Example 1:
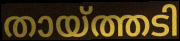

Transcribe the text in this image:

തായ്ത്തടി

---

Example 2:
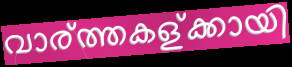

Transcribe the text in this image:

വാര്ത്തകള്ക്കായി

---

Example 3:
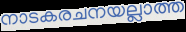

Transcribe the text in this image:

നാടകരചനയല്ലാത്ത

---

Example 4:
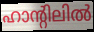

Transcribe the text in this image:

ഹാന്റിലിൽ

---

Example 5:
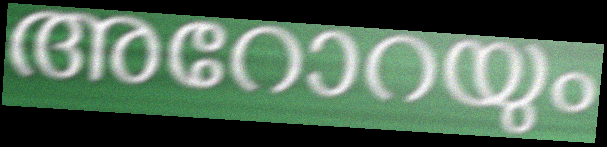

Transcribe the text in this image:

അറോറയും